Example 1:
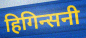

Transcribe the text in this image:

हिगिन्सनी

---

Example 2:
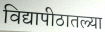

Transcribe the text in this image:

विद्यापीठातल्या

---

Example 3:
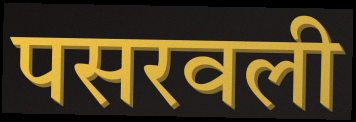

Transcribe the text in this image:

पसरवली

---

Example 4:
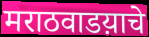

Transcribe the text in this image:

मराठवाडय़ाचे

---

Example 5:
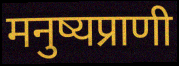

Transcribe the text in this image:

मनुष्यप्राणी